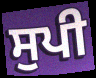
ਸੁਪੀ